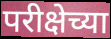
परीक्षेच्या